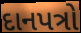
દાનપત્રો